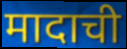
मादाची